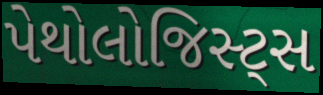
પેથોલોજિસ્ટ્સ